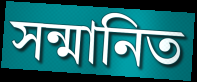
সন্মানিত